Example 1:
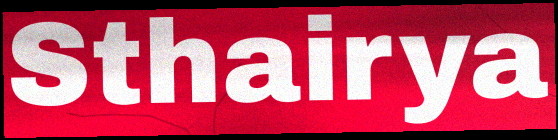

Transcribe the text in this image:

Sthairya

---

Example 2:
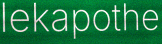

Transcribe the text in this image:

lekapothe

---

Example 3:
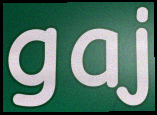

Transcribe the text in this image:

gaj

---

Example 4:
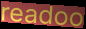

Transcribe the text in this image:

readoo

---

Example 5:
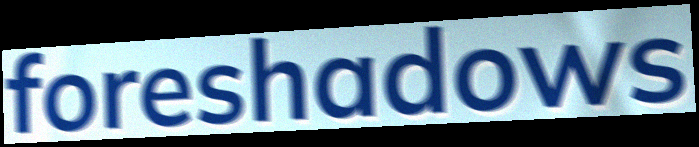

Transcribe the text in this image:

foreshadows